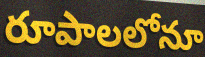
రూపాలలోనూ